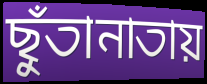
ছুঁতানাতায়